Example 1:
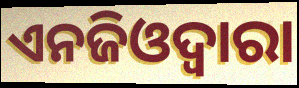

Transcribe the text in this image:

ଏନଜିଓଦ୍ୱାରା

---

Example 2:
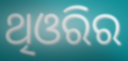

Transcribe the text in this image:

ଥିଓରିର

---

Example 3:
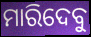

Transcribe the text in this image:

ମାରିଦେବୁ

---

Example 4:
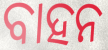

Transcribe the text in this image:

ବାହନ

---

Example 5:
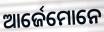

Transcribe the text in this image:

ଆର୍ଜେମୋନେ